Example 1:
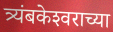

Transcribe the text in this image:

त्र्यंबकेश्‍वराच्या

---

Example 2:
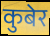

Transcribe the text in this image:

कुबेर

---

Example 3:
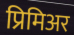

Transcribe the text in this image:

प्रिमिअर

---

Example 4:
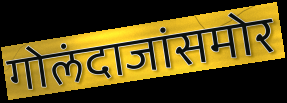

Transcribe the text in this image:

गोलंदाजांसमोर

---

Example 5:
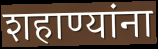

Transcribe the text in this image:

शहाण्यांना